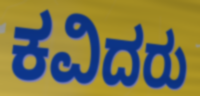
ಕವಿದರು